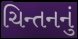
ચિન્તનનું